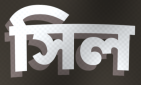
সিল